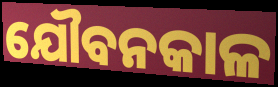
ଯୌବନକାଳ